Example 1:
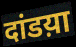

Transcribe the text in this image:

दांडय़ा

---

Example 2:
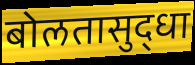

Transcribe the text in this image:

बोलतासुद्धा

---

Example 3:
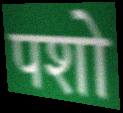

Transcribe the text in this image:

पशो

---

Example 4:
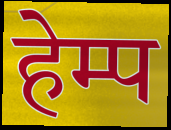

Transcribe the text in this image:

हेम्प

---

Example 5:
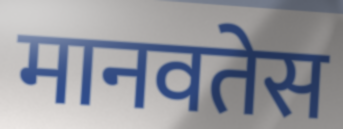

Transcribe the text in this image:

मानवतेस